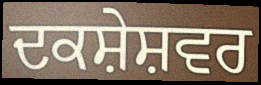
ਦਕਸ਼ੇਸ਼ਵਰ